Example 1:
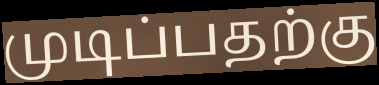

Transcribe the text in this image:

முடிப்பதற்கு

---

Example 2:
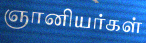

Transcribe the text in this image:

ஞானியர்கள்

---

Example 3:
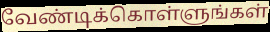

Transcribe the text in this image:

வேண்டிக்கொள்ளுங்கள்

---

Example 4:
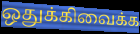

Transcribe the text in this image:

ஒதுக்கிவைக்க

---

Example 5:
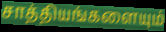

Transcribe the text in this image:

சாத்தியங்களையும்